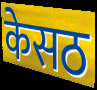
केसठ